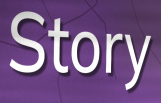
Story